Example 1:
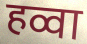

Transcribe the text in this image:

हव्वा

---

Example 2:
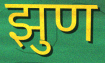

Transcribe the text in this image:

झुण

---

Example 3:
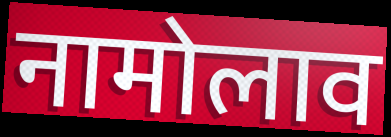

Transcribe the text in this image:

नामोलाव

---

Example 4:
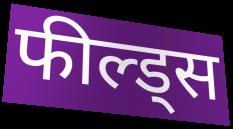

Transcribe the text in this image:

फील्ड्स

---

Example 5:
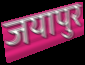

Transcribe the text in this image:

जयापुर